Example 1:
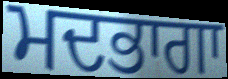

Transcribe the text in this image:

ਮਦਭਾਗਾ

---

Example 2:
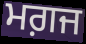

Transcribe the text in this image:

ਮਗ਼ਜ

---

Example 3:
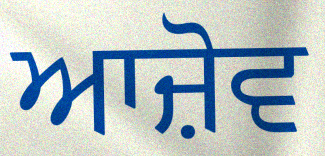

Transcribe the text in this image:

ਆਜ਼ੋਵ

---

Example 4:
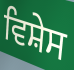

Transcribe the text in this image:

ਵਿਸ਼ੇਸ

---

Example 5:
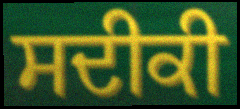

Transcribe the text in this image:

ਸਦੀਕੀ